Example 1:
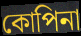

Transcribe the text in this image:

কোপিনা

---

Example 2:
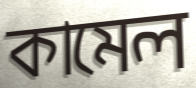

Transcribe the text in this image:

কামেল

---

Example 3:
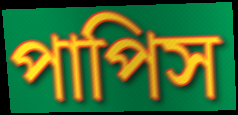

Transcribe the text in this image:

পাপিস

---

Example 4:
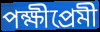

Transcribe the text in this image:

পক্ষীপ্রেমী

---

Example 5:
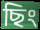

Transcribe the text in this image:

ছিং